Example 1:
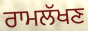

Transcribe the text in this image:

ਰਾਮਲੱਖਣ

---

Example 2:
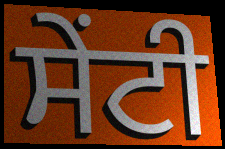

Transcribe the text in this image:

ਸੇਂਟੀ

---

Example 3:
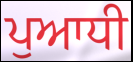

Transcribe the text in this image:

ਪੁਆਧੀ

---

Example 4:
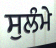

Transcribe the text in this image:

ਸੁਲੰਮੇ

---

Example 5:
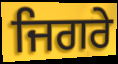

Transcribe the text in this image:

ਜਿਗਰੇ